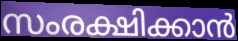
സംരക്ഷിക്കാൻ